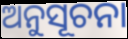
ଅନୁସୂଚନା